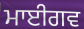
ਮਾਈਗਵ